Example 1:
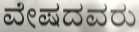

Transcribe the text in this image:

ವೇಷದವರು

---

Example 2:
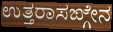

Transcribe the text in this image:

ಉತ್ತರಾಸಙ್ಗೇನ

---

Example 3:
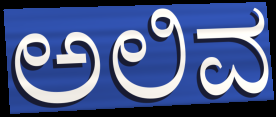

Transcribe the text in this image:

ಅಲಿವ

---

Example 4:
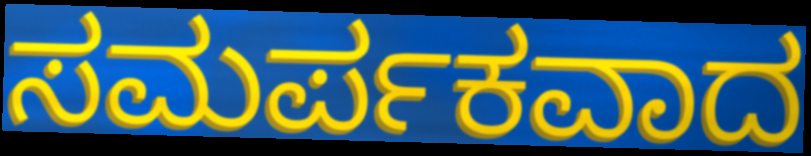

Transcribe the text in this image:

ಸಮರ್ಪಕವಾದ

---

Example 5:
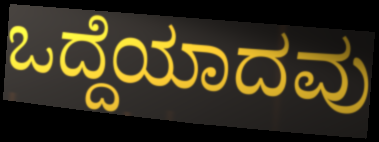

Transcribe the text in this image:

ಒದ್ದೆಯಾದವು